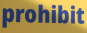
prohibit